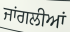
ਜਾਂਗਲੀਆਂ